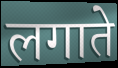
लगाते